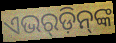
ଏଭର୍‍ଡ଼ିନ୍‌ଙ୍କ